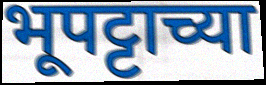
भूपट्टाच्या